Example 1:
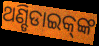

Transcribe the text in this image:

ଥଣ୍ଡିଡାଇକ୍‌ଙ୍କ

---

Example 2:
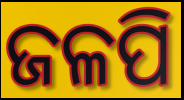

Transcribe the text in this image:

ଜଳପି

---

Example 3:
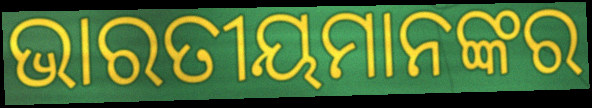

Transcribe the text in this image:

ଭାରତୀୟମାନଙ୍କର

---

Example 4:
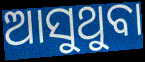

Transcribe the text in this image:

ଆସୁଥୁବା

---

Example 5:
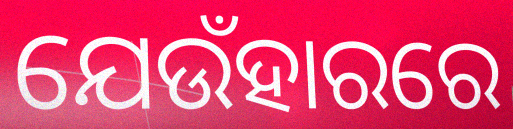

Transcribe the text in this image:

ଯେଉଁହାରରେ